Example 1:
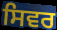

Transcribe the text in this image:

ਸਿਵਰ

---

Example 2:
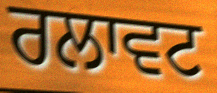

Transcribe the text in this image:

ਰਲਾਵਟ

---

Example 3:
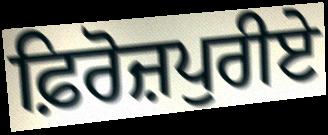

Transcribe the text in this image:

ਫ਼ਿਰੋਜ਼ਪੁਰੀਏ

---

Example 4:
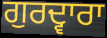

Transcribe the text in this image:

ਗੁਰਦ੍ਵਾਰਾ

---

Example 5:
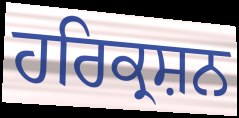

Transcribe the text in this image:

ਹਰਿਕ੍ਰਸ਼ਨ